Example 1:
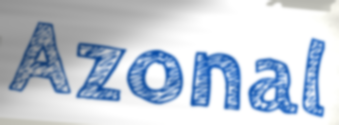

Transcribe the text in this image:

Azonal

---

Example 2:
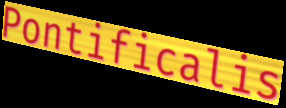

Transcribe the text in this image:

Pontificalis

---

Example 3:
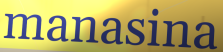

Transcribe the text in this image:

manasina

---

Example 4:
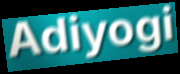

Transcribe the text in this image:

Adiyogi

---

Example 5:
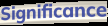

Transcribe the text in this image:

Significance